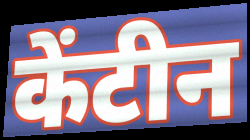
केंटीन